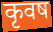
कृवष